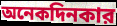
অনেকদিনকার